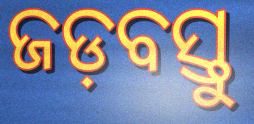
ଜଡ଼ବସ୍ତୁ